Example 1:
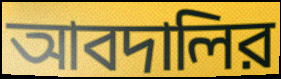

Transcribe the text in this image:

আবদালির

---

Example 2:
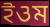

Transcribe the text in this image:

ইওম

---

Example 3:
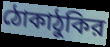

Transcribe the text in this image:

ঠোকাঠুকির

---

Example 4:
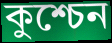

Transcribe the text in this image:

কুশ্চেন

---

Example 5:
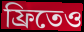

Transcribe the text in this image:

ফ্রিতেও